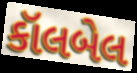
કૉલબેલ